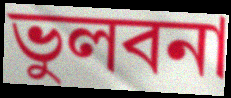
ভুলবনা